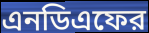
এনডিএফের